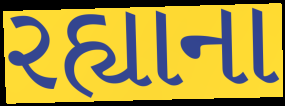
રહ્યાના